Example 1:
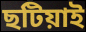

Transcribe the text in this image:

ছটিয়াই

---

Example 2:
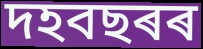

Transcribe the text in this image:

দহবছৰৰ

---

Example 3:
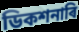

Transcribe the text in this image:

ডিকশনাৰি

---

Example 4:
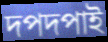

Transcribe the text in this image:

দপদপাই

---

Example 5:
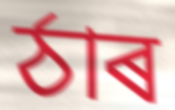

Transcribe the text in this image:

ঠাৰ